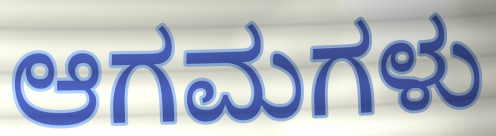
ಆಗಮಗಳು